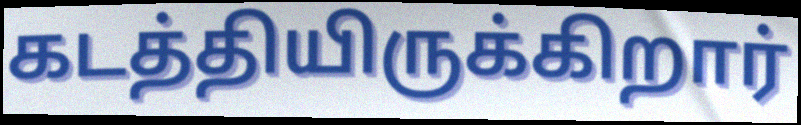
கடத்தியிருக்கிறார்